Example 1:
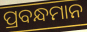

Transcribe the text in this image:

ପ୍ରବନ୍ଧମାନ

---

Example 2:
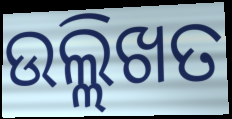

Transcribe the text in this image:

ଉଲ୍ଲିଖତ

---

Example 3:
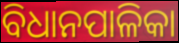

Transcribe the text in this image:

ବିଧାନପାଳିକା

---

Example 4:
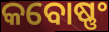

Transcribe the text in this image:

କବୋଷ୍ଣଂ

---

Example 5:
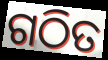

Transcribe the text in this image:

ଗଠିତ